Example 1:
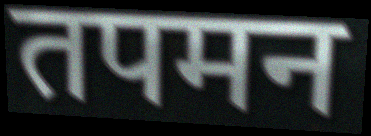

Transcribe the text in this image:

तपमन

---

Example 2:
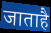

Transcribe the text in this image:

जाताहै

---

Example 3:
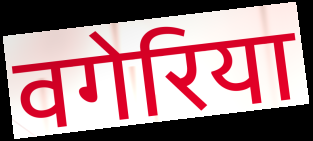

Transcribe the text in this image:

वगेरिया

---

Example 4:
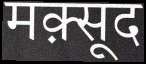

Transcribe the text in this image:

मक़्सूद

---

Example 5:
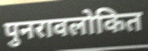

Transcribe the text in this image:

पुनरावलोकित